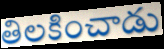
తిలకించాడు